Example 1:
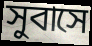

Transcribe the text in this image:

সুবাসে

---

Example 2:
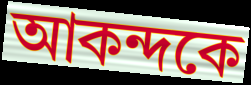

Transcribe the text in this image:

আকন্দকে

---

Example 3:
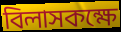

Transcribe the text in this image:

বিলাসকক্ষে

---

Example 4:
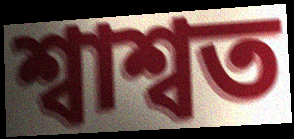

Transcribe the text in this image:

শ্বাশ্বত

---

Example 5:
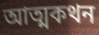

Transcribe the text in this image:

আত্মকথন